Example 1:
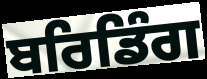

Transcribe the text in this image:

ਬਰਿਡਿੰਗ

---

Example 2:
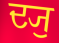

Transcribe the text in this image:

ਦ੍ਯੁ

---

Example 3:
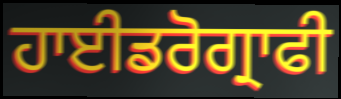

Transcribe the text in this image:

ਹਾਈਡਰੋਗ੍ਰਾਫੀ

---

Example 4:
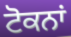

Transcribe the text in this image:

ਟੋਕਨਾਂ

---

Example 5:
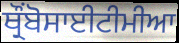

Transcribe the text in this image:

ਥ੍ਰੌਂਬੋਸਾਈਟੀਮੀਆ